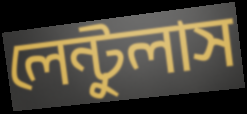
লেন্টুলাস